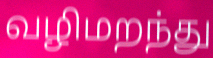
வழிமறந்து